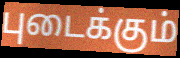
புடைக்கும்